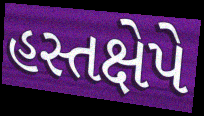
હસ્તક્ષેપે